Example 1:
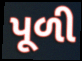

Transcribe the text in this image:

પૂળી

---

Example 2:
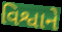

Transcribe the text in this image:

વિશ્વાને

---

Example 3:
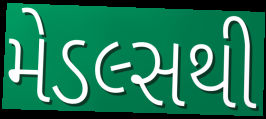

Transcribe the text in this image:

મેડલ્સથી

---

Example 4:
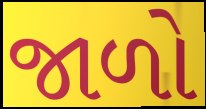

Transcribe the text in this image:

જાળો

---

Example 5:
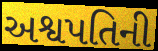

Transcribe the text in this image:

અશ્વપતિની